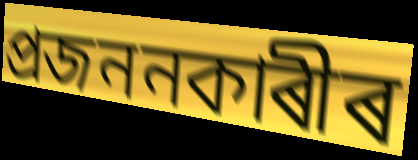
প্ৰজননকাৰীৰ